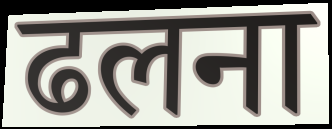
ढलना